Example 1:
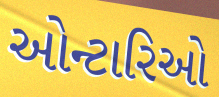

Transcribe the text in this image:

ઓન્ટારિઓ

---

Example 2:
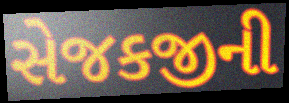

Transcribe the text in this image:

સેજકજીની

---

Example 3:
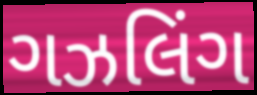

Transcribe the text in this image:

ગઝલિંગ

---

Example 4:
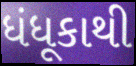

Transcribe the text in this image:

ધંધૂકાથી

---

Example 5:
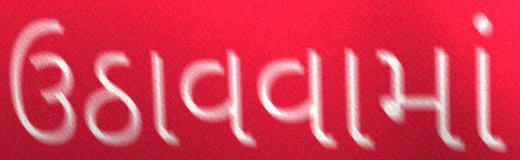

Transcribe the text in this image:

ઉઠાવવામાં